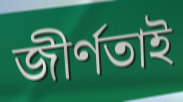
জীর্ণতাই